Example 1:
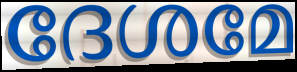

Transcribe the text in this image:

ദേശമേ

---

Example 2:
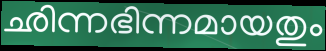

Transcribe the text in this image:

ഛിന്നഭിന്നമായതും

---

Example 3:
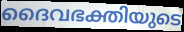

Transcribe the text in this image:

ദൈവഭക്തിയുടെ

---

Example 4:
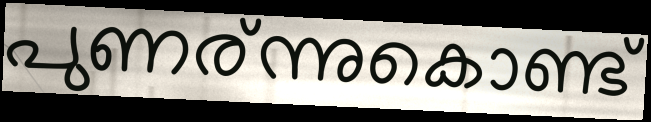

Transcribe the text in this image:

പുണര്ന്നുകൊണ്ട്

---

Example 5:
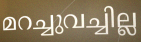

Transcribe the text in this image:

മറച്ചുവച്ചില്ല